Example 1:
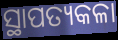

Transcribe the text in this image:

ସ୍ଥାପତ୍ୟକଳା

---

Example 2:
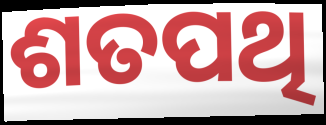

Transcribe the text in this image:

ଶତପଥି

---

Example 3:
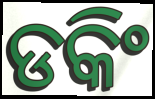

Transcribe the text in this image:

ଡକିଂ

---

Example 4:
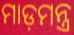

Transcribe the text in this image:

ମାଡ଼ମନ୍ତ୍ର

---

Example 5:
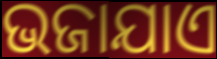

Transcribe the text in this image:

ଭଜାଯାଏ